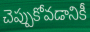
చెప్పుకోవడానికీ